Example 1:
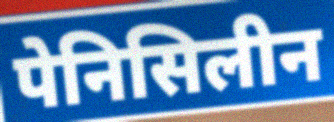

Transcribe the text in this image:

पेनिसिलीन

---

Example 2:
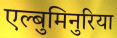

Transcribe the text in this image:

एल्बुमिनुरिया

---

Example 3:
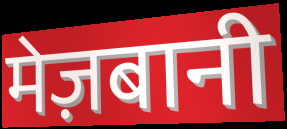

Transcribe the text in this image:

मेज़बानी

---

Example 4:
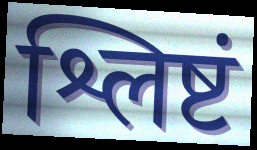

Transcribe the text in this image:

श्लिष्टं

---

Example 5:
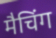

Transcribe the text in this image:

मैचिंग